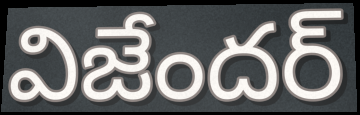
విజేందర్